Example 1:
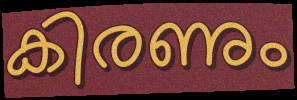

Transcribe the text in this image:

കിരണും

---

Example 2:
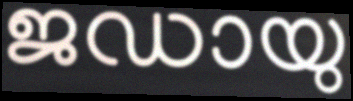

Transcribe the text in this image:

ജഡായു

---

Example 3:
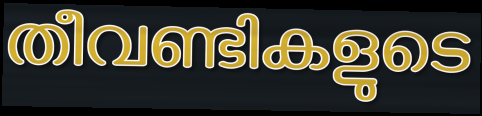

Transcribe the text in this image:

തീവണ്ടികളുടെ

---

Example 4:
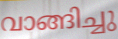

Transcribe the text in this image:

വാങ്ങിച്ചു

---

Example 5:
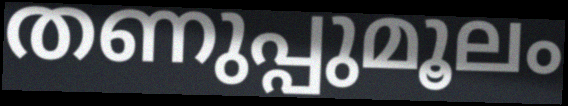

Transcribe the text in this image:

തണുപ്പുമൂലം